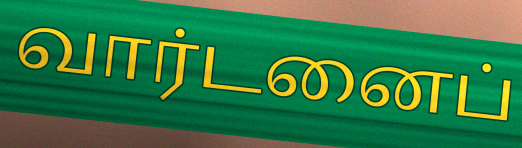
வார்டனைப்